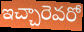
ఇచ్చారెవరో